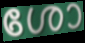
ശോ